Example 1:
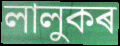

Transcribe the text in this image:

লালুকৰ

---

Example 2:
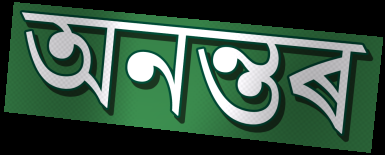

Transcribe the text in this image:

অনন্তৰ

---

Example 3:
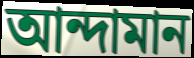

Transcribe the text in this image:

আন্দামান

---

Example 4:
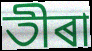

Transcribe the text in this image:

তীৰা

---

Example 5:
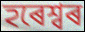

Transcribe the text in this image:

হৰেশ্বৰ